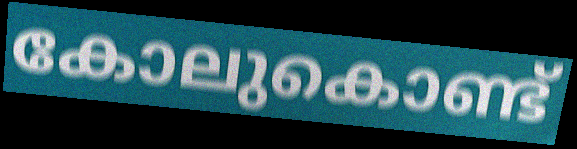
കോലുകൊണ്ട്